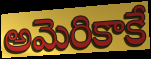
అమెరికాకే